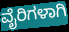
ವೈರಿಗಳಾಗಿ